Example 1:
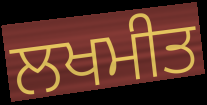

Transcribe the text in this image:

ਲਖਮੀਤ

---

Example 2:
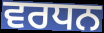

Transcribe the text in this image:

ਵਰਧਨ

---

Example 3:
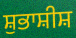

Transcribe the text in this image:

ਸ਼ੁਭਾਸ਼ੀਸ਼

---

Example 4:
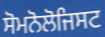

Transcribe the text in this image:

ਸੋਮਨੋਲੋਜਿਸਟ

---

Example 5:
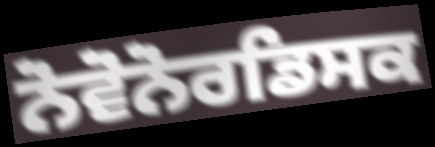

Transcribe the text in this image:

ਨੋਵੋਨੋਰਡਿਸਕ